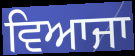
ਵਿਆਜਾ